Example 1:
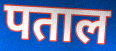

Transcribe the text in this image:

पताल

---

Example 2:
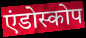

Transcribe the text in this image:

एंडोस्कोप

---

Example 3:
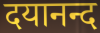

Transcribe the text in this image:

दयानन्द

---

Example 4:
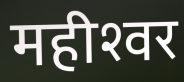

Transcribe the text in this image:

महीश्वर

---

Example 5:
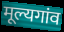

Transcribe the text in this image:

मूल्यगांव